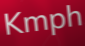
Kmph